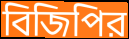
বিজিপির